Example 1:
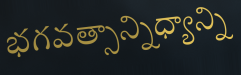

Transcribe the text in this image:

భగవత్సాన్నిధ్యాన్ని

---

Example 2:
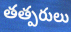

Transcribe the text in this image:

తత్పరులు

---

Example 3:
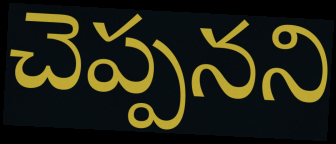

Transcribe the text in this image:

చెప్పనని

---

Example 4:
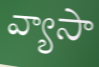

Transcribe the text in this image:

వ్యాసా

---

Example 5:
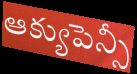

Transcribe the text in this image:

ఆక్యుపెన్సీ